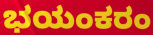
ಭಯಂಕರಂ